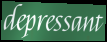
depressant